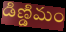
డిణ్డిమం